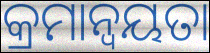
କ୍ରମାନ୍ବୟତା